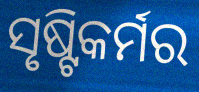
ସୃଷ୍ଟିକର୍ମର